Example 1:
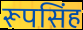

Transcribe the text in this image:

रूपसिंह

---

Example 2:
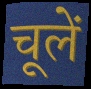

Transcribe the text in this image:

चूलें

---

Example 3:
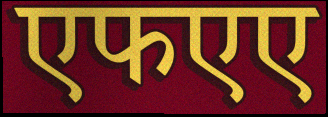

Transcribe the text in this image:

एफएए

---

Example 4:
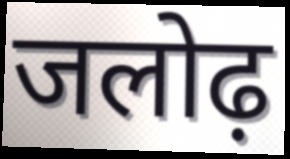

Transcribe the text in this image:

जलोढ़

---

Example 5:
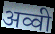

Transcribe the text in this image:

अव्वी